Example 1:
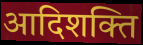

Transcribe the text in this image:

आदिशक्ति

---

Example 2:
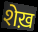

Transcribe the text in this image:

शेख़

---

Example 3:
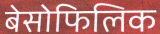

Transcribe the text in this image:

बेसोफिलिक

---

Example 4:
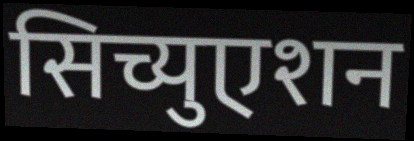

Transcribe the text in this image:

सिच्युएशन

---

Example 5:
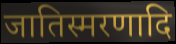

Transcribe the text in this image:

जातिस्मरणादि